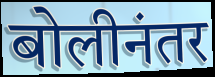
बोलीनंतर